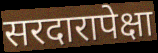
सरदारापेक्षा